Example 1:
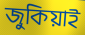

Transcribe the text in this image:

জুকিয়াই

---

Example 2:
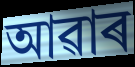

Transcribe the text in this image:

আৱাৰ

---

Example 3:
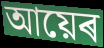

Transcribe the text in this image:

আয়েৰ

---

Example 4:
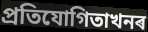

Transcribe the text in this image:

প্ৰতিযোগিতাখনৰ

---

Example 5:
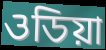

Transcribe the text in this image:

ওডিয়া